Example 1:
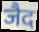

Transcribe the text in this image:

जैद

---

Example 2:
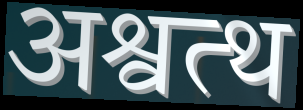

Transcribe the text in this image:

अश्वत्थ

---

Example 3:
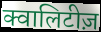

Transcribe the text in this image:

क्वालिटीज़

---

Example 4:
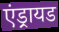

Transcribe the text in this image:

एंड्रायड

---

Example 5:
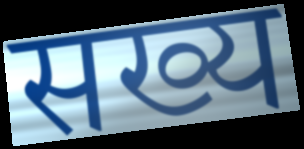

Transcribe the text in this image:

सख्य